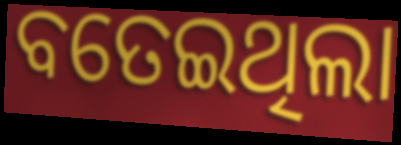
ବତେଇଥିଲା